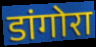
डांगोरा